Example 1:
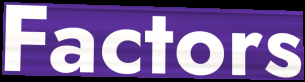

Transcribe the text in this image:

Factors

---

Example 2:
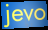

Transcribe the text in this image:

jevo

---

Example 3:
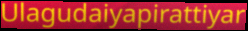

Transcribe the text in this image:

Ulagudaiyapirattiyar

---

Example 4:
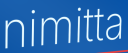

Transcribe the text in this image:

nimitta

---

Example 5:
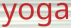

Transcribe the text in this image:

yoga